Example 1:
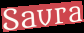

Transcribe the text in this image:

Saura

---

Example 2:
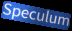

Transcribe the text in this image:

Speculum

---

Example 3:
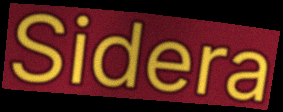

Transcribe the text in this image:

Sidera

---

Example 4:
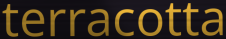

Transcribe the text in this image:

terracotta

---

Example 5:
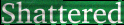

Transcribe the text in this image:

Shattered